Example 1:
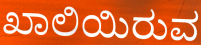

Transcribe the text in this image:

ಖಾಲಿಯಿರುವ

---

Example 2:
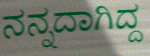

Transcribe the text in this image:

ನನ್ನದಾಗಿದ್ದ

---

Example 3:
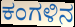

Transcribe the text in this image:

ಕಂಗಳಿನ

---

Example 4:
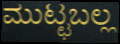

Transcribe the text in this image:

ಮುಟ್ಟಬಲ್ಲ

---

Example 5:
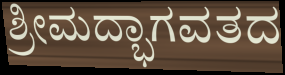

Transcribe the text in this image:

ಶ್ರೀಮದ್ಭಾಗವತದ